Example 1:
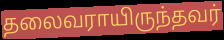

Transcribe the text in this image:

தலைவராயிருந்தவர்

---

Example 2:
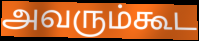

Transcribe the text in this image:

அவரும்கூட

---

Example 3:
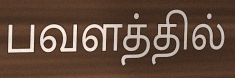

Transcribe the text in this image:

பவளத்தில்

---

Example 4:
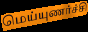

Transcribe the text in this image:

மெய்யுணர்ச்சி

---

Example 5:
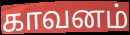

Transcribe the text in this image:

காவனம்